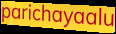
parichayaalu